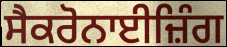
ਸੈਕਰੋਨਾਈਜ਼ਿੰਗ